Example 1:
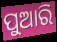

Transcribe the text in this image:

ପୁଆରି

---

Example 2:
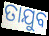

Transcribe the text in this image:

ତାଯୁବ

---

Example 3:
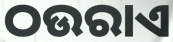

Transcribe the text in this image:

ଠଉରାଏ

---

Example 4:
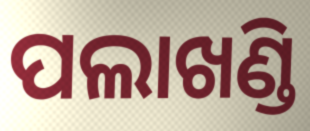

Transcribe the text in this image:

ପଲାଖଣ୍ଡି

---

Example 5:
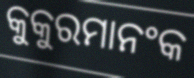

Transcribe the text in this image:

କୁକୁରମାନଂକ